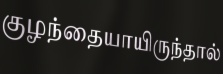
குழந்தையாயிருந்தால்